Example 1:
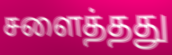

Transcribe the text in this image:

சளைத்தது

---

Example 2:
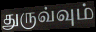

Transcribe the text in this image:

துருவ்வும்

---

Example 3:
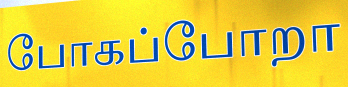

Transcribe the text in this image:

போகப்போறா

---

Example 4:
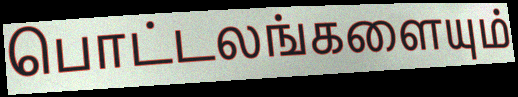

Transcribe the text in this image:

பொட்டலங்களையும்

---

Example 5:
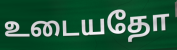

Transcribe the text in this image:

உடையதோ